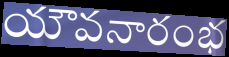
యౌవనారంభ